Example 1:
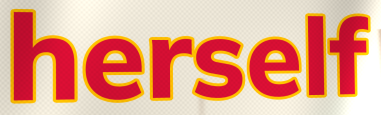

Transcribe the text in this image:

herself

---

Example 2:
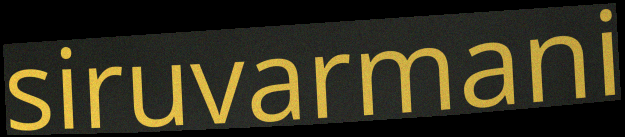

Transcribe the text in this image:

siruvarmani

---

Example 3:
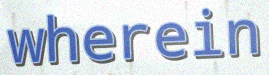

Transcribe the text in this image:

wherein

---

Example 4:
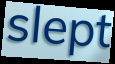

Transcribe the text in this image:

slept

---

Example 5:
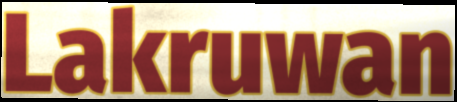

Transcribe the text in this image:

Lakruwan